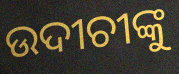
ଉଦୀଚୀଙ୍କୁ